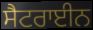
ਸੈਟਰਾਈਨ